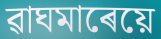
ৱাঘমাৰেয়ে